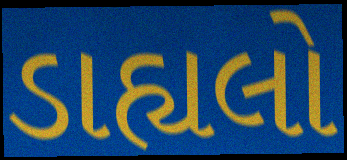
ડાહ્યલો